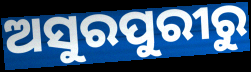
ଅସୁରପୁରୀରୁ